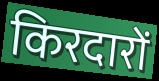
किरदारों